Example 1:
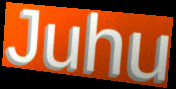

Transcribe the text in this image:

Juhu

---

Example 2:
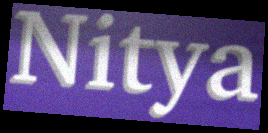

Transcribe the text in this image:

Nitya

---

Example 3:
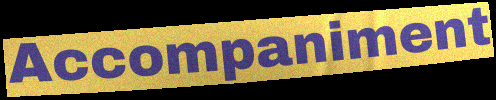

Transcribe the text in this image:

Accompaniment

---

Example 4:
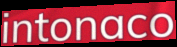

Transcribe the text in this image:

intonaco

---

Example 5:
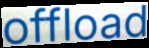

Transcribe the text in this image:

offload